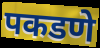
पकडणे